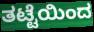
ತಟ್ಟೆಯಿಂದ